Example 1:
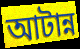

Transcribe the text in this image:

আটান্ন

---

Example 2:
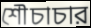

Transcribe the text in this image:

শৌচাচার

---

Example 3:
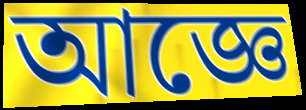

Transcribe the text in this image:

আজ্ঞে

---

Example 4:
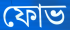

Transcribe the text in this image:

ফোভ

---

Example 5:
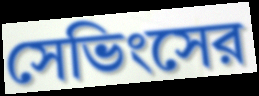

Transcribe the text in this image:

সেভিংসের